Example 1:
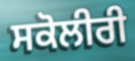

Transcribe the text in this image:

ਸਕੋਲੀਰੀ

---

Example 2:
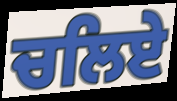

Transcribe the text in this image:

ਚਲਿਏ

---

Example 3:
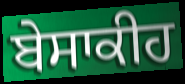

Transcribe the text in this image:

ਬੇਸਾਕੀਹ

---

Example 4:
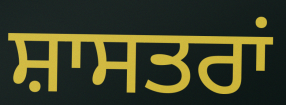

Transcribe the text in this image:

ਸ਼ਾਸਤਰਾਂ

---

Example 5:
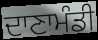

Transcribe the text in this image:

ਦਾਣਾਮੰਡੀ